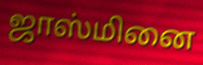
ஜாஸ்மினை